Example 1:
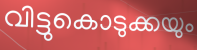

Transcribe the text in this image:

വിട്ടുകൊടുക്കയും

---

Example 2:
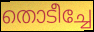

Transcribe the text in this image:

തൊടീച്ചേ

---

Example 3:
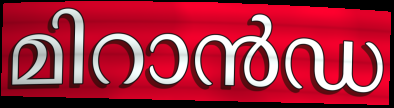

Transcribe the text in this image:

മിറാൻഡ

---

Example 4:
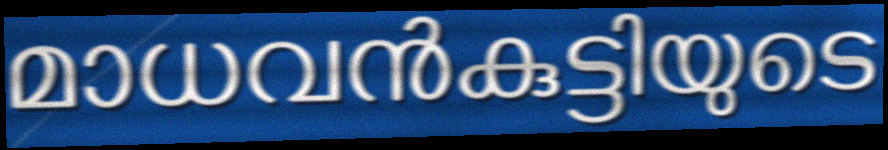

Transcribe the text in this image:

മാധവൻകുട്ടിയുടെ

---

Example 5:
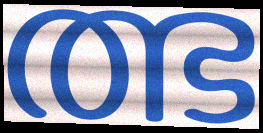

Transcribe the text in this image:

ത്ഭ